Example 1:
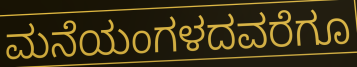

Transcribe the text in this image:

ಮನೆಯಂಗಳದವರೆಗೂ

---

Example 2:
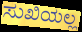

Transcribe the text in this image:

ಸುಖಿಯಲ್ಲ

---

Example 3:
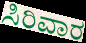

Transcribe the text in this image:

ಸಿರಿವಾರ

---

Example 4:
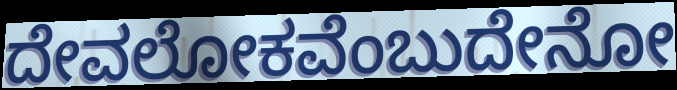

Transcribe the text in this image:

ದೇವಲೋಕವೆಂಬುದೇನೋ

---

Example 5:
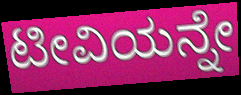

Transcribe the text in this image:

ಟೀವಿಯನ್ನೇ